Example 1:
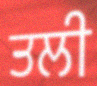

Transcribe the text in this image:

ਤਲੀ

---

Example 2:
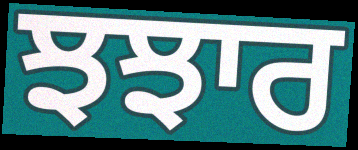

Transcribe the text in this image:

ਝਝਾਰ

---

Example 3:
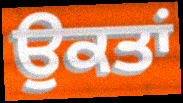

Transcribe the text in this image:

ਉਕਤਾਂ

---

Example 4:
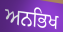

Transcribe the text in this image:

ਅਨਭਿਖ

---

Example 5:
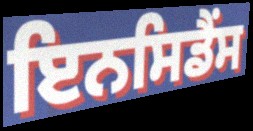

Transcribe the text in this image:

ਇਨਸਿਡੈਂਸ